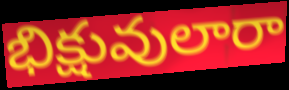
భిక్షువులారా